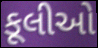
કૂલીઓ